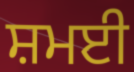
ਸ਼ਮਈ